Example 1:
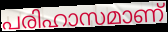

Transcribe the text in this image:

പരിഹാസമാണ്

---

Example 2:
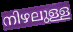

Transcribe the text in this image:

നിഴലുള്ള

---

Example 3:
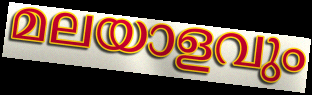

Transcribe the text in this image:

മലയാളവും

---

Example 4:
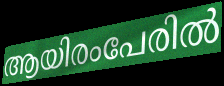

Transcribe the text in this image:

ആയിരംപേരിൽ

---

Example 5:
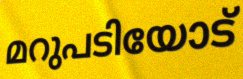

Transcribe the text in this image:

മറുപടിയോട്